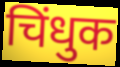
चिंधुक